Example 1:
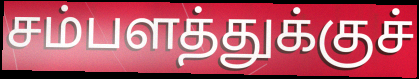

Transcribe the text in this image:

சம்பளத்துக்குச்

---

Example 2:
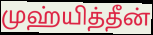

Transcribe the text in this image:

முஹ்யித்தீன்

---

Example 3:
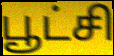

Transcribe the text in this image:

பூட்சி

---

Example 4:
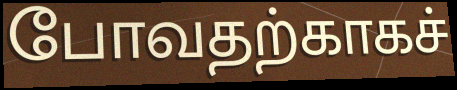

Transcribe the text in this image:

போவதற்காகச்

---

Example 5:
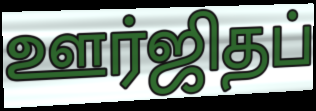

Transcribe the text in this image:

ஊர்ஜிதப்